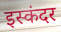
इस्कंदर